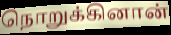
நொறுக்கினான்